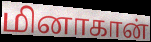
மினாகான்